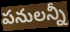
పనులన్నీ